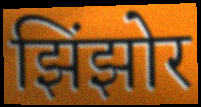
झिंझोर